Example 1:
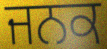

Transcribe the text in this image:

ਜਨਕ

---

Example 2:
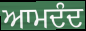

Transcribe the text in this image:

ਆਮਦੰਦ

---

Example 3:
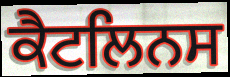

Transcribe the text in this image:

ਕੈਟਲਿਨਸ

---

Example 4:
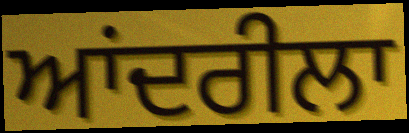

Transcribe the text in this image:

ਆਂਦਰੀਲਾ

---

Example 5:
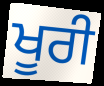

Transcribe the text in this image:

ਖੂਰੀ